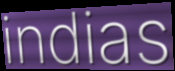
indias